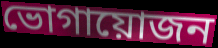
ভোগায়োজন